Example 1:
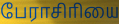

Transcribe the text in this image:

பேராசிரியை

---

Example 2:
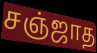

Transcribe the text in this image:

சஞ்ஜாத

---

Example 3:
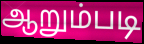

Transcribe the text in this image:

ஆறும்படி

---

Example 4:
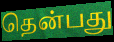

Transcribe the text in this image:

தென்பது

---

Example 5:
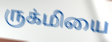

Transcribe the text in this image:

ருக்மியை